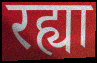
रह्या